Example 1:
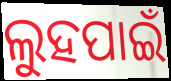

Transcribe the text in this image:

ଲୁହପାଇଁ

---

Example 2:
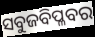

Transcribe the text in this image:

ସବୁଜବିପ୍ଳବର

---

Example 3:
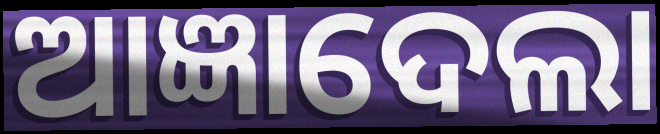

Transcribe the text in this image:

ଆଜ୍ଞାଦେଲା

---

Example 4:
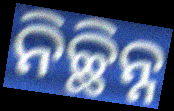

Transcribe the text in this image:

ନିଚ୍ଛିନ୍ନ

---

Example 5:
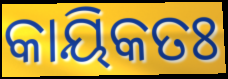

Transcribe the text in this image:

କାୟିକତଃ